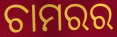
ଚାମରର